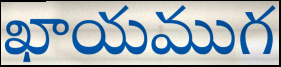
ఖాయముగ